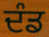
ਦੰਡ